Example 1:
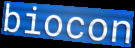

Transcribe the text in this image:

biocon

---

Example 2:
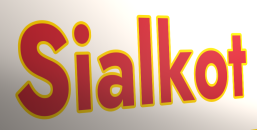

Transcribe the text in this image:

Sialkot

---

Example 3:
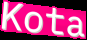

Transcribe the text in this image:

Kota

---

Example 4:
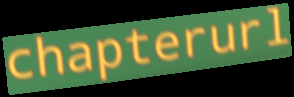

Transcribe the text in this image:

chapterurl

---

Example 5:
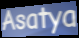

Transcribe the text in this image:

Asatya